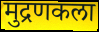
मुद्रणकला